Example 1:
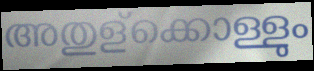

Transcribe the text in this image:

അതുള്ക്കൊള്ളും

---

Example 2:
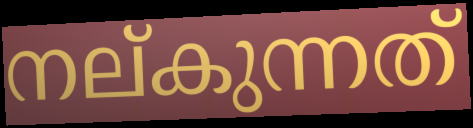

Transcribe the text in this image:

നല്കുന്നത്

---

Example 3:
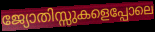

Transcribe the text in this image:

ജ്യോതിസ്സുകളെപ്പോലെ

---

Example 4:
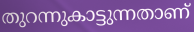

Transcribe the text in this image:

തുറന്നുകാട്ടുന്നതാണ്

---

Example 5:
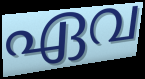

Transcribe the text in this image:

ഏവ